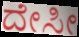
ದೇಸೀ